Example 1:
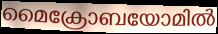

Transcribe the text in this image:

മൈക്രോബയോമിൽ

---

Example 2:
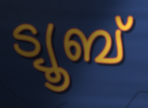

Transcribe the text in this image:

ട്യൂബ്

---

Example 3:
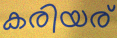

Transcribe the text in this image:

കരിയര്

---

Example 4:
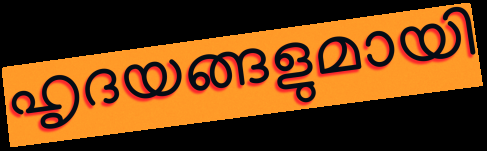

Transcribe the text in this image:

ഹൃദയങ്ങളുമായി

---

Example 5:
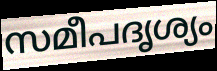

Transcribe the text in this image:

സമീപദൃശ്യം